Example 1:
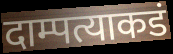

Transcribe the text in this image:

दाम्पत्याकडं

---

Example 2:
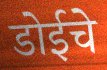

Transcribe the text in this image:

डोईचे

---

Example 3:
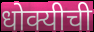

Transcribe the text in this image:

धोक्यीची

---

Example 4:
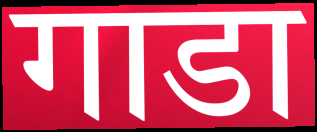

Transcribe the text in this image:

गाडा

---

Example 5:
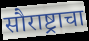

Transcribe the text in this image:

सौराष्ट्राचा